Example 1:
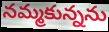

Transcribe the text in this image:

నమ్మకున్నను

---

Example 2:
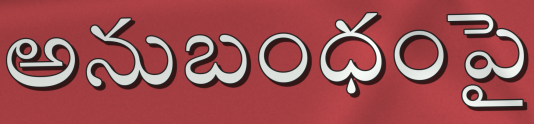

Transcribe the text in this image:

అనుబంధంపై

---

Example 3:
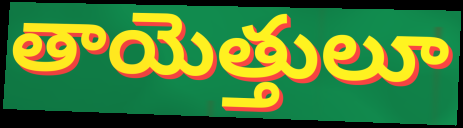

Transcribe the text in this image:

తాయెత్తులూ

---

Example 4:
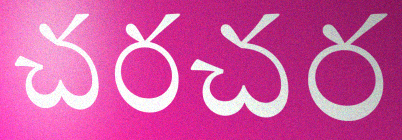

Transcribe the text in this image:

చరచర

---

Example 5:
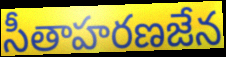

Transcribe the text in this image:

సీతాహరణజేన